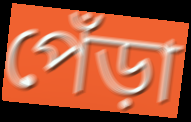
পেঁড়া